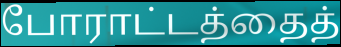
போராட்டத்தைத்